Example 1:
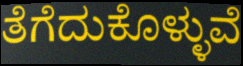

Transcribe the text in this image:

ತೆಗೆದುಕೊಳ್ಳುವೆ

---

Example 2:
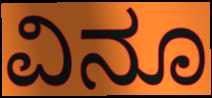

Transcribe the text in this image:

ವಿನೂ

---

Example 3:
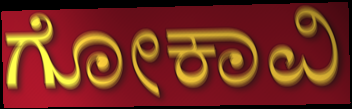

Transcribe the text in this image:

ಗೋಕಾವಿ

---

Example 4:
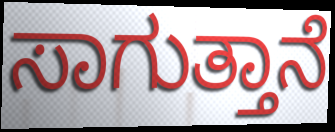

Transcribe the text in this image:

ಸಾಗುತ್ತಾನೆ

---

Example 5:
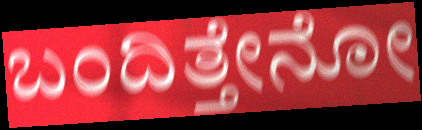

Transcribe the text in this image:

ಬಂದಿತ್ತೇನೋ